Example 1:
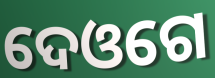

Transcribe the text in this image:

ଦେଓଗେ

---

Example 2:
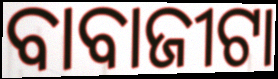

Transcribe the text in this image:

ବାବାଜୀଟା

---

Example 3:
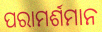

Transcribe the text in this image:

ପରାମର୍ଶମାନ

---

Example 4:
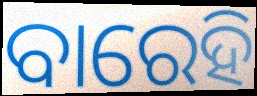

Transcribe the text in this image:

ବାରେହି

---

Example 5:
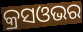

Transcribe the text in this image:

କ୍ରସଓଭର